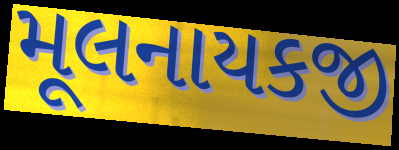
મૂલનાયકજી